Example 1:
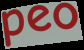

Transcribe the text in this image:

peo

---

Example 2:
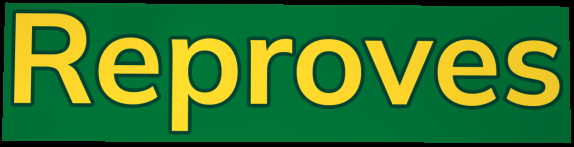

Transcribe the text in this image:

Reproves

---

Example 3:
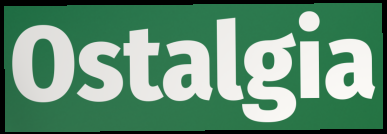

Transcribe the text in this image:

Ostalgia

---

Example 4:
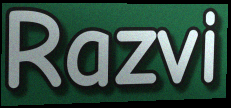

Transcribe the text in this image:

Razvi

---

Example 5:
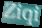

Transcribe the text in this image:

Ziqi